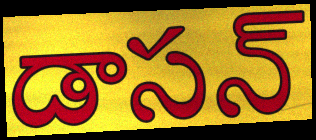
డాసన్